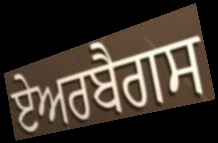
ਏਅਰਬੈਗਸ